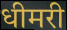
धीमरी